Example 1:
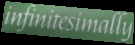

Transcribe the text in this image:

infinitesimally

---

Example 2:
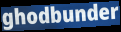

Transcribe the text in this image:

ghodbunder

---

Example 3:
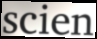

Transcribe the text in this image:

scien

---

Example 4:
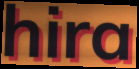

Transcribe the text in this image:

hira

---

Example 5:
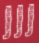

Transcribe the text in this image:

JJJ